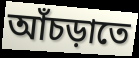
আঁচড়াতে